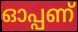
ഓപ്പണ്